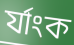
র্যাংক